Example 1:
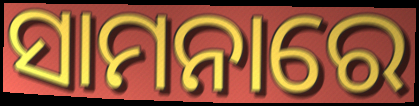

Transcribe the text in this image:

ସାମନାରେ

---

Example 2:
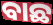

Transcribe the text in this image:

ବାଛ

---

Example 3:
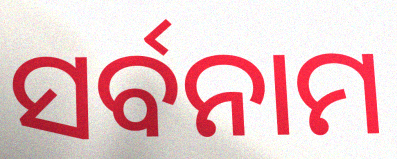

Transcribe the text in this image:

ସର୍ବନାମ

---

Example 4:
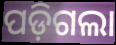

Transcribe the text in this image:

ପଡ଼ିଗଲା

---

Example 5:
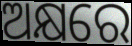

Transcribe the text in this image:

ଅକ୍ଷରେ